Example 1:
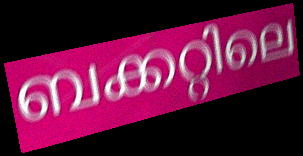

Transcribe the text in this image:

ബക്കറ്റിലെ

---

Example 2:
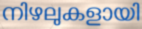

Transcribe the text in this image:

നിഴലുകളായി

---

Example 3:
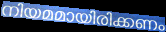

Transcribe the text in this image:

നിയമമായിരിക്കണം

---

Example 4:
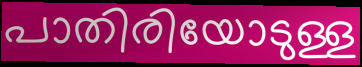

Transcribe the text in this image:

പാതിരിയോടുള്ള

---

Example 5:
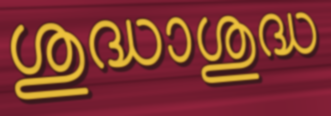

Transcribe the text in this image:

ശുദ്ധാശുദ്ധ